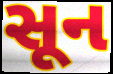
સૂન